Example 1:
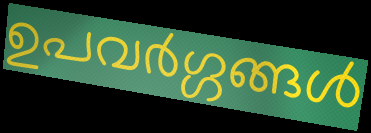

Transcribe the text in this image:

ഉപവർഗ്ഗങ്ങൾ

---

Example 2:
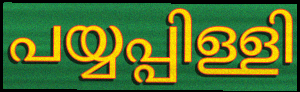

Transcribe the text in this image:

പയ്യപ്പിള്ളി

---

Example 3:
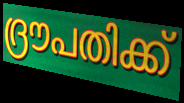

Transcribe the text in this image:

ദ്രൗപതിക്ക്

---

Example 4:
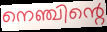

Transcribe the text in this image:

നെഞ്ചിന്റെ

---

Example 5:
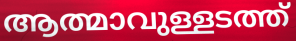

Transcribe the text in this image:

ആത്മാവുള്ളടത്ത്